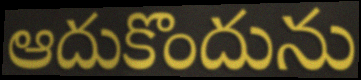
ఆదుకొందును